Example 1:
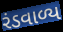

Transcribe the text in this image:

રંડવાળ્ય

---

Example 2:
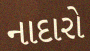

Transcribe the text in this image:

નાદારો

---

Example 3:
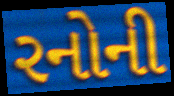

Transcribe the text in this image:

રનોની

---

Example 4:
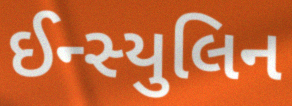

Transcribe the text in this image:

ઈન્સ્યુલિન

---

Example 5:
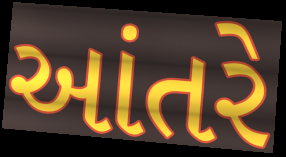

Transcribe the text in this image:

આંતરે